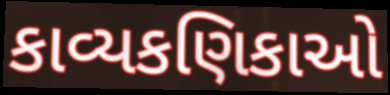
કાવ્યકણિકાઓ